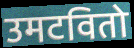
उमटवितो